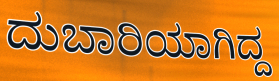
ದುಬಾರಿಯಾಗಿದ್ದ